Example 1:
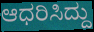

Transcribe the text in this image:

ಆಧರಿಸಿದ್ದು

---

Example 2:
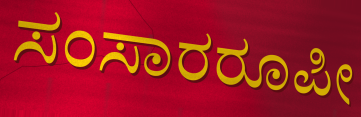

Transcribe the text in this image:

ಸಂಸಾರರೂಪೀ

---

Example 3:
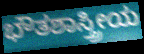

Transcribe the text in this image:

ಭೌತಶಾಸ್ತ್ರೀಯ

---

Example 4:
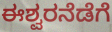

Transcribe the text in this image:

ಈಶ್ವರನೆಡೆಗೆ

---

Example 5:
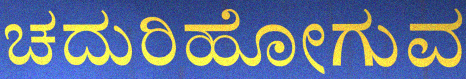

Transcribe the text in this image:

ಚದುರಿಹೋಗುವ